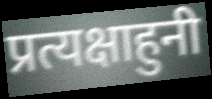
प्रत्यक्षाहुनी